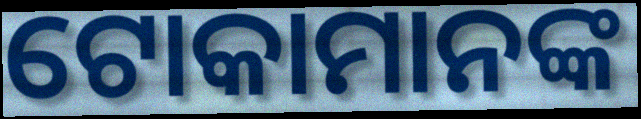
ଟୋକାମାନଙ୍କ